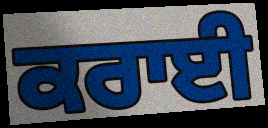
ਕਰਾਈ